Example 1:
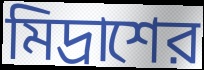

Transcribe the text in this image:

মিদ্রাশের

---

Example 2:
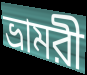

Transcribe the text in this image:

ভ্রামরী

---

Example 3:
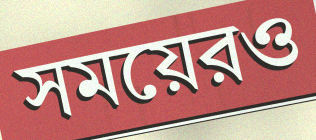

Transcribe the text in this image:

সময়েরও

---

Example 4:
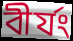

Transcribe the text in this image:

বীর্যং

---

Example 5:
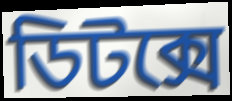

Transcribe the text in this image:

ডিটক্সে